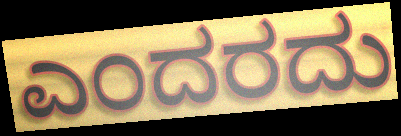
ಎಂದರದು